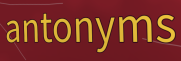
antonyms